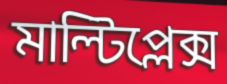
মাল্টিপ্লেক্স